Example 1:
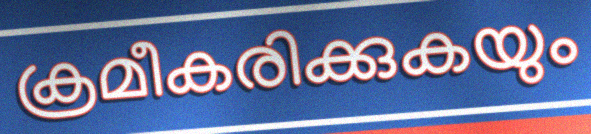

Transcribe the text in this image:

ക്രമീകരിക്കുകയും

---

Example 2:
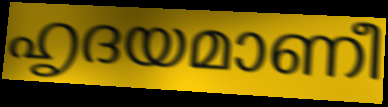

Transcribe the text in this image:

ഹൃദയമാണീ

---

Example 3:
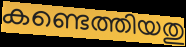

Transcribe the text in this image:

കണ്ടെത്തിയതു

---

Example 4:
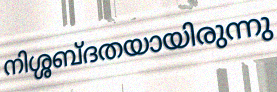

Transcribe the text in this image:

നിശ്ശബ്ദതയായിരുന്നു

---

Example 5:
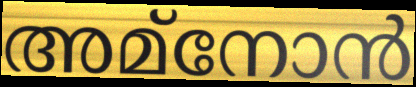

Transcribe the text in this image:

അമ്നോൻ